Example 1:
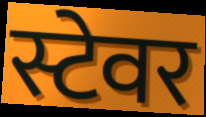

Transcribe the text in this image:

स्टेवर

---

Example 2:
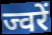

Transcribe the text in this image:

ज्वरें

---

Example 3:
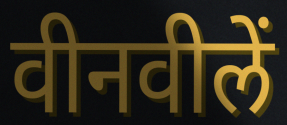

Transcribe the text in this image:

वीनवीलें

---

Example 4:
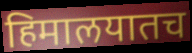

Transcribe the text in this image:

हिमालयातच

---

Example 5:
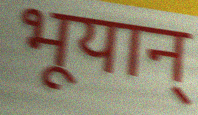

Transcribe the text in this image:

भूयान्